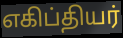
எகிப்தியர்